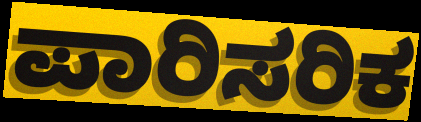
ಪಾರಿಸರಿಕ